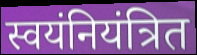
स्वयंनियंत्रित